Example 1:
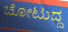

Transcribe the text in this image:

ಚೋಟುದ್ದ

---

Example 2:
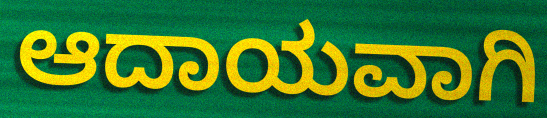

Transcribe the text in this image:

ಆದಾಯವಾಗಿ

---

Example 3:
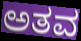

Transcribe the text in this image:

ಅತವ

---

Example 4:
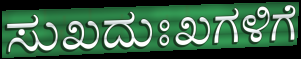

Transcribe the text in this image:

ಸುಖದುಃಖಗಳಿಗೆ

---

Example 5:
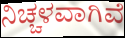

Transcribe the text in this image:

ನಿಚ್ಚಳವಾಗಿವೆ